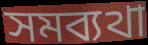
সমব্যথা